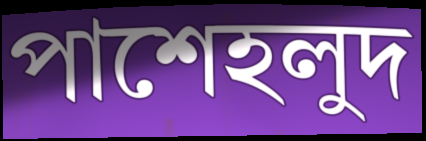
পাশেহলুদ